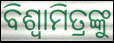
ବିଶ୍ଵାମିତ୍ରଙ୍କୁ